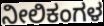
ನೀಲಿಕಂಗಳ